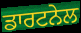
ਡਾਰਟਨੇਲ